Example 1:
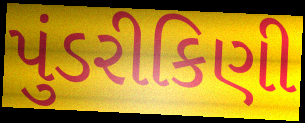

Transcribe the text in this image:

પુંડરીકિણી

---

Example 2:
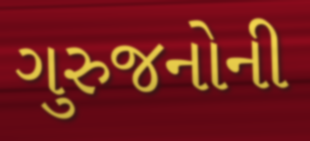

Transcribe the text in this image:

ગુરુજનોની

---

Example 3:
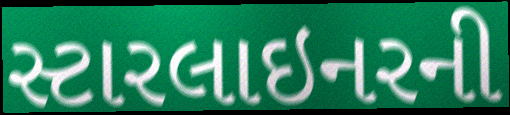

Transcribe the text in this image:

સ્ટારલાઇનરની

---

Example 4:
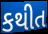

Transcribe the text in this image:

કથીત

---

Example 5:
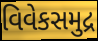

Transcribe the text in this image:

વિવેકસમુદ્ર